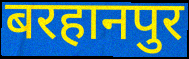
बरहानपुर